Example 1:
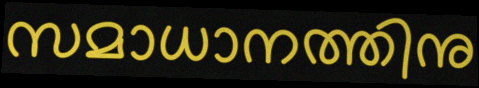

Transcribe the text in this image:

സമാധാനത്തിനു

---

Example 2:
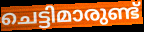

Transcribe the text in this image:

ചെട്ടിമാരുണ്ട്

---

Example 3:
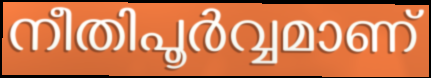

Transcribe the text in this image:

നീതിപൂർവ്വമാണ്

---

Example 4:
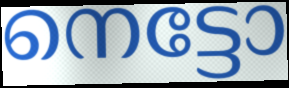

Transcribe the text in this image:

നെട്ടോ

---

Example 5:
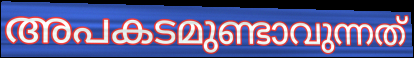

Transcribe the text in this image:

അപകടമുണ്ടാവുന്നത്